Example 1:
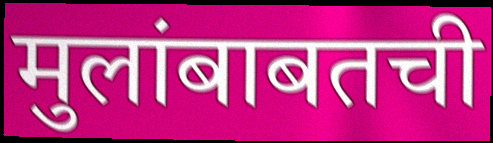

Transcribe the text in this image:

मुलांबाबतची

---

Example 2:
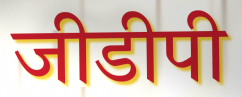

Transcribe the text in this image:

जीडीपी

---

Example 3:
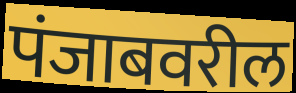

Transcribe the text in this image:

पंजाबवरील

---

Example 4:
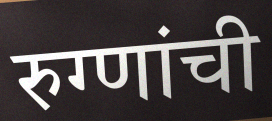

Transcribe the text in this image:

रुग्‍णांची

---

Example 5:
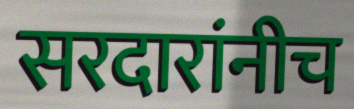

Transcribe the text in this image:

सरदारांनीच